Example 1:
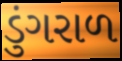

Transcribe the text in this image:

ડુંગરાળ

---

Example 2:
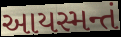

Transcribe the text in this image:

આયસ્મન્તં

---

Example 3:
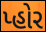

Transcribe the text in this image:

પ્હોર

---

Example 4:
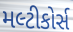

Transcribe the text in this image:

મલ્ટીકોર્સ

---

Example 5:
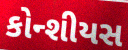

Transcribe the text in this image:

કોન્શીયસ